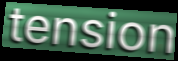
tension